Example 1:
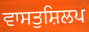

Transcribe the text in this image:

ਵਾਸਤੁਸ਼ਿਲਪ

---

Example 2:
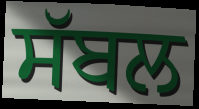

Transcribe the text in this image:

ਸੱਬਲ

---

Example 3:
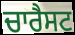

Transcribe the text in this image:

ਚਾਰੈਸਟ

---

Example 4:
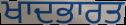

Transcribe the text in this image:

ਖਾਦਭਾਰਤ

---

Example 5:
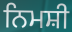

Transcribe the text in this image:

ਨਿਮਸ਼ੀ